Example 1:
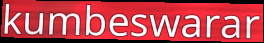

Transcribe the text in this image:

kumbeswarar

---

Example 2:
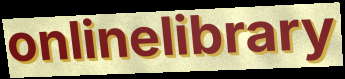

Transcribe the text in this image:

onlinelibrary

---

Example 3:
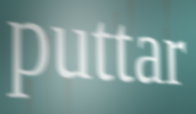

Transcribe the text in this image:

puttar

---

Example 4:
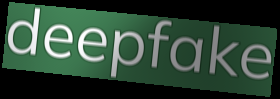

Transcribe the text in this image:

deepfake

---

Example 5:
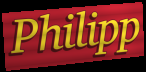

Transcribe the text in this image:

Philipp